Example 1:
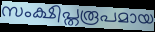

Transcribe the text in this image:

സംക്ഷിപ്തരൂപമായ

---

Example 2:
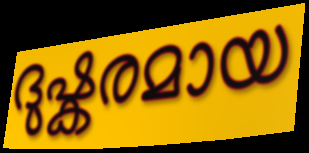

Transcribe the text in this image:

ദുഷ്കരമായ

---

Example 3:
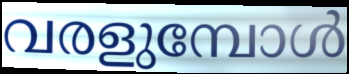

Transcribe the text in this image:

വരളുമ്പോൾ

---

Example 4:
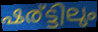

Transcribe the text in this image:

ഷര്ട്ടിലും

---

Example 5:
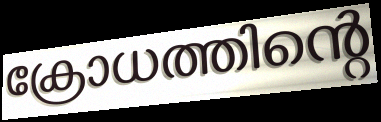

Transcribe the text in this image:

ക്രോധത്തിന്റെ